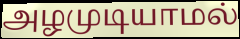
அழமுடியாமல்